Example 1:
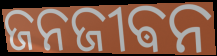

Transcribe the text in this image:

ଜନଜୀଵନ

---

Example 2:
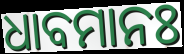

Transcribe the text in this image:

ଧାବମାନଃ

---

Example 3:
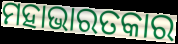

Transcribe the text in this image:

ମହାଭାରତକାର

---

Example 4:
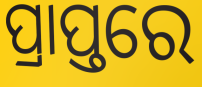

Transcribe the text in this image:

ପ୍ରାପ୍ତରେ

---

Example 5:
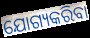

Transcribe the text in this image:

ଯୋଗ୍ୟକରିବା